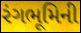
રંગભૂમિની